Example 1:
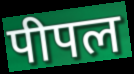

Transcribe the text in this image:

पीपल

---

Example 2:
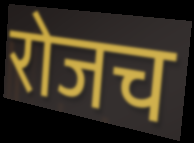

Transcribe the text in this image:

रोजच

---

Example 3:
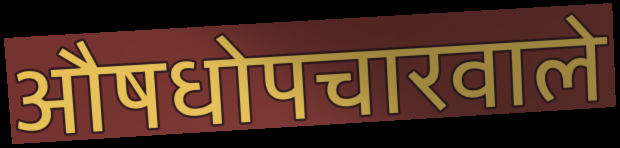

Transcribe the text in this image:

औषधोपचारवाले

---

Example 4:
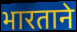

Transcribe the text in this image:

भारताने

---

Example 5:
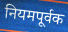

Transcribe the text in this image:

नियमपूर्वक